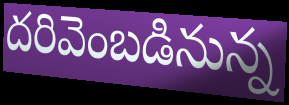
దరివెంబడినున్న